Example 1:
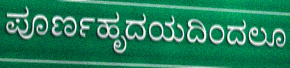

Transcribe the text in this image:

ಪೂರ್ಣಹೃದಯದಿಂದಲೂ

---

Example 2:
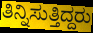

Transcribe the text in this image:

ತಿನ್ನಿಸುತ್ತಿದ್ದರು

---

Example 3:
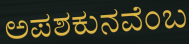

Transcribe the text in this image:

ಅಪಶಕುನವೆಂಬ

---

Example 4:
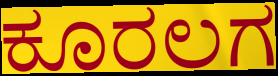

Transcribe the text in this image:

ಕೂರಲಗ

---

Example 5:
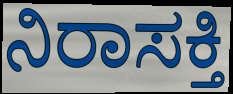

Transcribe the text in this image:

ನಿರಾಸಕ್ತಿ